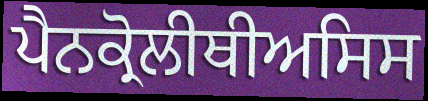
ਪੈਨਕ੍ਰੋਲੀਥੀਅਸਿਸ